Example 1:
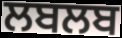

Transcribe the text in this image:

ਲਬਲਬ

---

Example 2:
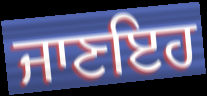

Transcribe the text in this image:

ਜਾਣਇਹ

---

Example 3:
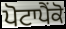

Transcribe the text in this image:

ਪੋਟਾਪੈਂਕੋ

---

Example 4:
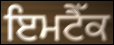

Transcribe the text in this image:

ਇਮਟੈੱਕ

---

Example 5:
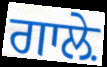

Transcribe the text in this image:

ਗਾਲ਼ੇ